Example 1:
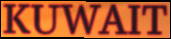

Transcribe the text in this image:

KUWAIT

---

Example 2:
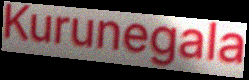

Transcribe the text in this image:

Kurunegala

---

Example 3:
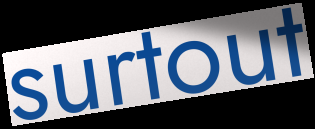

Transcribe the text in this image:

surtout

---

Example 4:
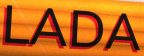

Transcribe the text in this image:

LADA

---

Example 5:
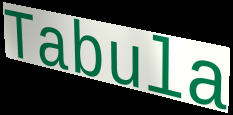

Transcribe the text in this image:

Tabula